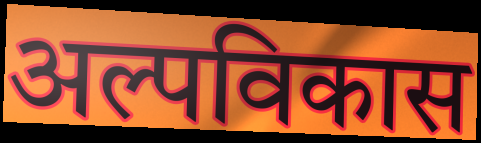
अल्पविकास